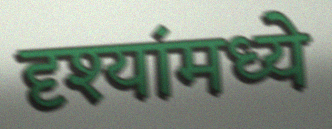
दृश्यांमध्ये